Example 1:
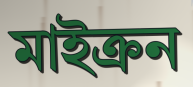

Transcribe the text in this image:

মাইক্রন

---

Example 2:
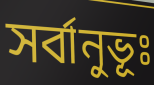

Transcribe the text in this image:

সর্বানুভূঃ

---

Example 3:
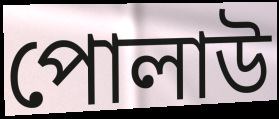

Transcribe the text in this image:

পোলাউ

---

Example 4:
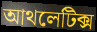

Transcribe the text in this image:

আথলেটিক্স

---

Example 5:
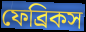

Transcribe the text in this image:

ফেব্রিকস